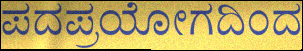
ಪದಪ್ರಯೋಗದಿಂದ